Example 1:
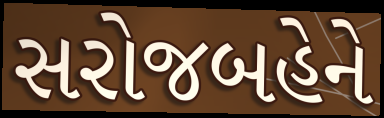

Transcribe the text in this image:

સરોજબહેને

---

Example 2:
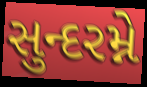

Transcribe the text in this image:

સુન્દરમ્ને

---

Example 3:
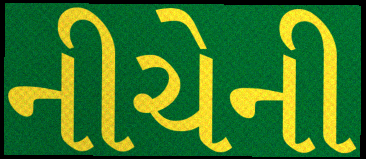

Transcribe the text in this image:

નીચેની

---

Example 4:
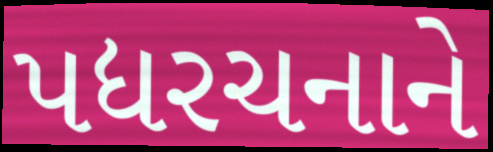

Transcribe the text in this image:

પદ્યરચનાને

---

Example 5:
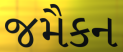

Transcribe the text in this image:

જમૈકન